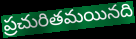
ప్రచురితమయినది